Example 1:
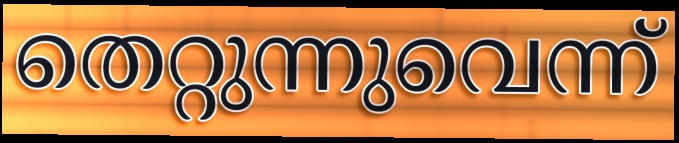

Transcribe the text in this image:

തെറ്റുന്നുവെന്ന്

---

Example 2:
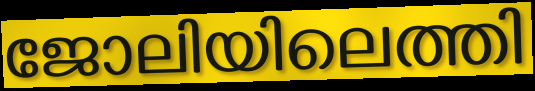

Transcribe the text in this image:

ജോലിയിലെത്തി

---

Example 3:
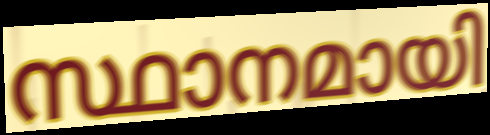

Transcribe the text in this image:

സ്ഥാനമായി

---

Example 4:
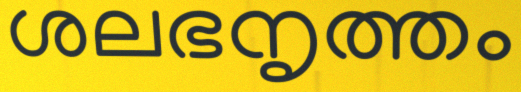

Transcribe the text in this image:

ശലഭനൃത്തം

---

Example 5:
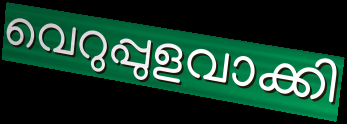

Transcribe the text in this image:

വെറുപ്പുളവാക്കി